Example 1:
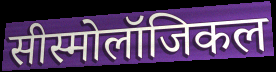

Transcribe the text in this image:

सीस्मोलॉजिकल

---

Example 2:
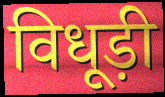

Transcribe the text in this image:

विधूड़ी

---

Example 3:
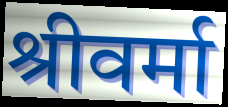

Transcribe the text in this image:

श्रीवर्मा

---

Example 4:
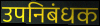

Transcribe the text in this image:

उपनिबंधक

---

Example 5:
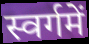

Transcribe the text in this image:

स्वर्गमें